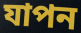
যাপন